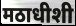
मठाधीशी